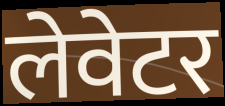
लेवेटर